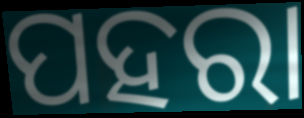
ପହରା